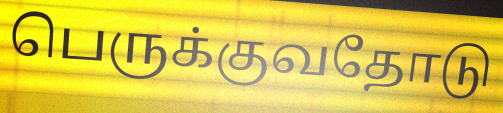
பெருக்குவதோடு